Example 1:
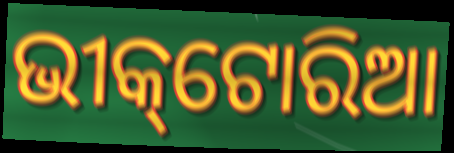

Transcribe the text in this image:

ଭୀକ୍‌ଟୋରିଆ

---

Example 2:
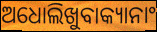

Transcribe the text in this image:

ଅଧୋଲିଖୁବାକ୍ୟାନାଂ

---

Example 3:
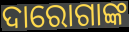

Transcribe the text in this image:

ଦାରୋଗାଙ୍କ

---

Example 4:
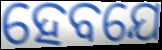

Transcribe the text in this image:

ହେବଯେ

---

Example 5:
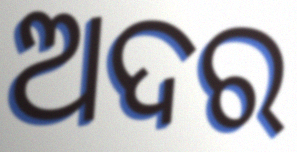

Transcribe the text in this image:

ଅଦର